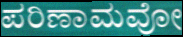
ಪರಿಣಾಮವೋ